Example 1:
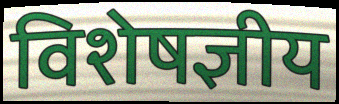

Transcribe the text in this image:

विशेषज्ञीय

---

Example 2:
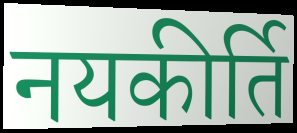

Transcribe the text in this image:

नयकीर्ति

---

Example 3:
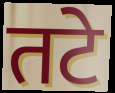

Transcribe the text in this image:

तटे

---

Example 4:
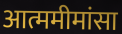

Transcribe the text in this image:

आत्ममीमांसा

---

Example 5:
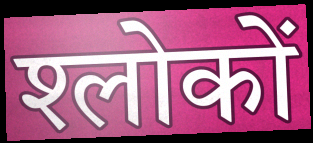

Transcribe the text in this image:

श्लोकों